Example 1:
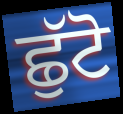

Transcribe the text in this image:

ਛੁੱਟੋ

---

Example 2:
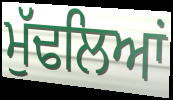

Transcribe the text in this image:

ਮੁੱਢਲਿਆਂ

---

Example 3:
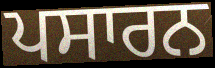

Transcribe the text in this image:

ਪਸਾਰਨ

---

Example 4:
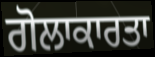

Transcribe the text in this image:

ਗੋਲਾਕਾਰਤਾ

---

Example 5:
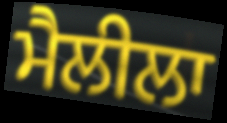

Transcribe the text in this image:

ਮੈਲੀਲਾ